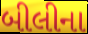
બીલીના